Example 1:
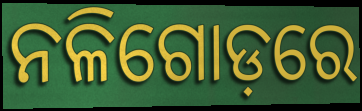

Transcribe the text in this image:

ନଳିଗୋଡ଼ରେ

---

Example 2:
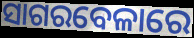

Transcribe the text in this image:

ସାଗରବେଳାରେ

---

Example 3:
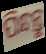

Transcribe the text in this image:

ପିନ୍ଧନ୍ତୁ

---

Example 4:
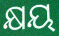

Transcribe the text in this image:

କ୍ଷୟ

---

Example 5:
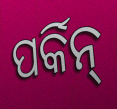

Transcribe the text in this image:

ପର୍କିନ୍